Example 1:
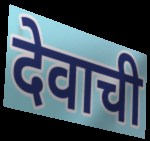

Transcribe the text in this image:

देवाची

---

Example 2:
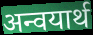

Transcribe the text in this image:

अन्वयार्थ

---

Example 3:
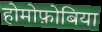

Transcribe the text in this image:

होमोफ़ोबिया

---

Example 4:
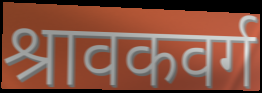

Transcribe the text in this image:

श्रावकवर्ग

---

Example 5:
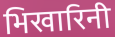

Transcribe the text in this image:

भिखारिनी